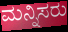
ಮನ್ನಿಸರು